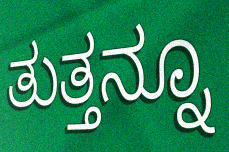
ತುತ್ತನ್ನೂ